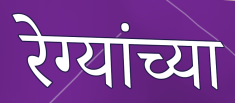
रेग्यांच्या